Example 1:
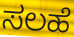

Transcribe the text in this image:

ಸಲಹೆ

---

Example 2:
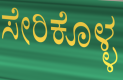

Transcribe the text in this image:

ಸೇರಿಕೊಳ್ಳ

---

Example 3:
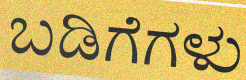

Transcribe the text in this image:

ಬಡಿಗೆಗಳು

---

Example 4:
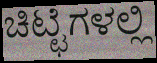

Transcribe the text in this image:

ಚಿಟ್ಟೆಗಳಲ್ಲಿ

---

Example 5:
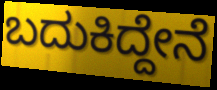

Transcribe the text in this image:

ಬದುಕಿದ್ದೇನೆ